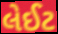
લેઈટ